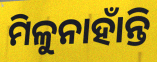
ମିଳୁନାହାଁନ୍ତି